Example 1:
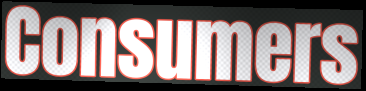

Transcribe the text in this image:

Consumers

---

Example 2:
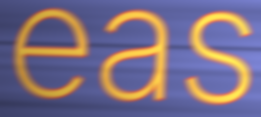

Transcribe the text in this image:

eas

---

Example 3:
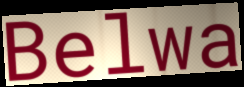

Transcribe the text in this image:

Belwa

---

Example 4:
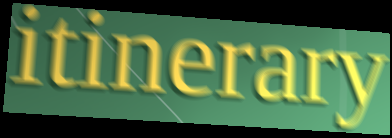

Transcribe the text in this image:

itinerary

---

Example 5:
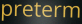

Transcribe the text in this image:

preterm